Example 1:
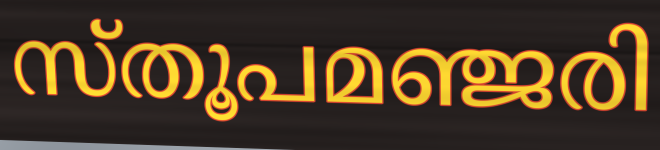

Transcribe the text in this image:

സ്തൂപമഞ്ജരി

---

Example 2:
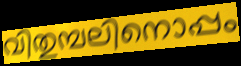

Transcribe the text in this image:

വിതുമ്പലിനൊപ്പം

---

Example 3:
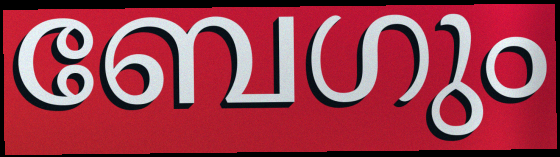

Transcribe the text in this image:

ബേഗും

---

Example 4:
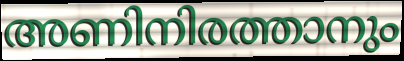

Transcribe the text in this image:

അണിനിരത്താനും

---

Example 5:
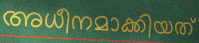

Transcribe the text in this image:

അധീനമാക്കിയത്